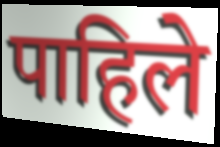
पाहिले